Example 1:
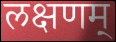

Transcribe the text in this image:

लक्षणम्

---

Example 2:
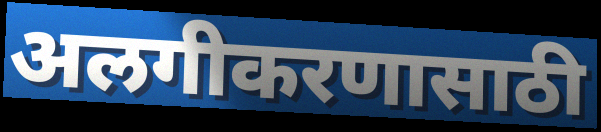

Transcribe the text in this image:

अलगीकरणासाठी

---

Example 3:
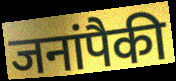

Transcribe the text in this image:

जनांपैकी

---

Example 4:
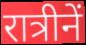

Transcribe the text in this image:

रात्रीनें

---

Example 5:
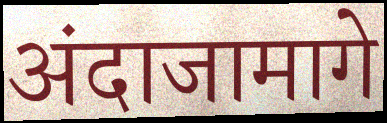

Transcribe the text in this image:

अंदाजामागे